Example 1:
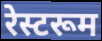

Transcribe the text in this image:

रेस्टरूम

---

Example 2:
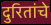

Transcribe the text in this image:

दुरितांचे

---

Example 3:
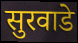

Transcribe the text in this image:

सुरवाडे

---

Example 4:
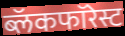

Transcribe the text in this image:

ब्लॅकफॉरेस्ट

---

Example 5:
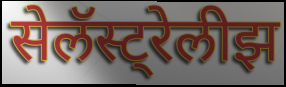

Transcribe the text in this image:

सेलॅस्ट्रेलीझ